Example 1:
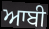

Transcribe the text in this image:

ਆਬੀ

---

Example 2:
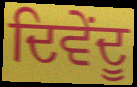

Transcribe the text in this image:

ਦਿਵੇਂਦੂ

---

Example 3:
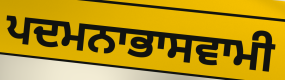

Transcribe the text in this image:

ਪਦਮਨਾਭਾਸਵਾਮੀ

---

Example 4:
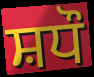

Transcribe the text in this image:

ਸ਼ਧੌ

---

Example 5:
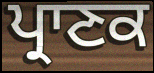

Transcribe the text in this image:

ਪ੍ਰਾਣਕ